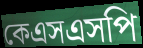
কেএসএসপি